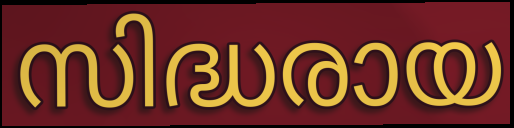
സിദ്ധരായ